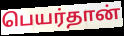
பெயர்தான்